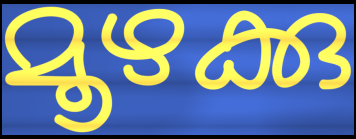
മൂഴക്കു